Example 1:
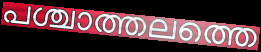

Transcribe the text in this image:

പശ്ചാത്തലത്തെ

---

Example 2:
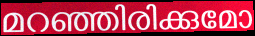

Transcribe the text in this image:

മറഞ്ഞിരിക്കുമോ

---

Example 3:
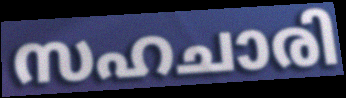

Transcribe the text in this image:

സഹചാരി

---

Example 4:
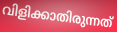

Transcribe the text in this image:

വിളിക്കാതിരുന്നത്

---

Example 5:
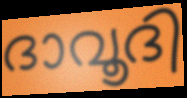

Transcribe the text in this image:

ദാവൂദി